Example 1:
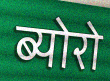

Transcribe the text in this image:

ब्योरो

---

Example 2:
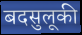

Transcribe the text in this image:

बदसुलूकी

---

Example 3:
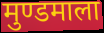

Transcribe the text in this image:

मुण्डमाला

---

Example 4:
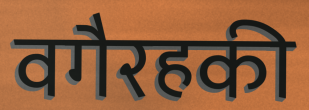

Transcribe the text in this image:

वगैरहकी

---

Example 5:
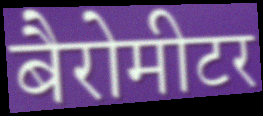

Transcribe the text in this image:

बैरोमीटर